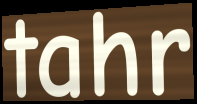
tahr